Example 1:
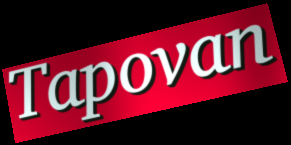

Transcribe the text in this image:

Tapovan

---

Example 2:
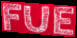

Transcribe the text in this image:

FUE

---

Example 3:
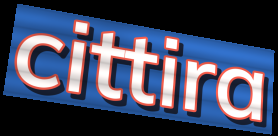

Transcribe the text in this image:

cittira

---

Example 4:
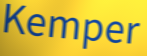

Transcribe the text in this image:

Kemper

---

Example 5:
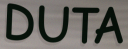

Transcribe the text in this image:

DUTA